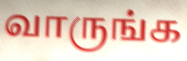
வாருங்க